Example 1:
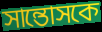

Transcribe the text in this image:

সান্তোসকে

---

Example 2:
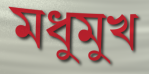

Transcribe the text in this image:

মধুমুখ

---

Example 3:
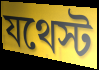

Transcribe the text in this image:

যথেস্ট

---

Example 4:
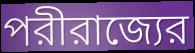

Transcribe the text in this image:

পরীরাজ্যের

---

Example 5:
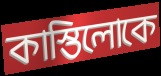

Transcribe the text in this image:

কাস্তিলোকে